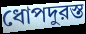
ধোপদুরস্ত